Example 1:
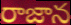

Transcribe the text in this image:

రాజాన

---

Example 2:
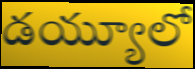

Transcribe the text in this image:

డయ్యూలో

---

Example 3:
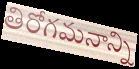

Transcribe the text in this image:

తిరోగమనాన్ని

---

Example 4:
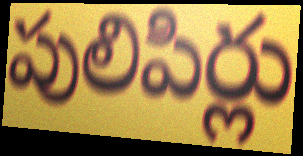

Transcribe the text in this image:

పులిపిర్లు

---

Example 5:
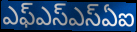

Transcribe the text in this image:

ఎఫ్ఎస్ఎస్ఏఐ